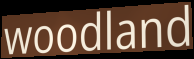
woodland